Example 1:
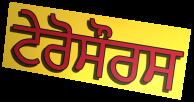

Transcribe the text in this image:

ਟੇਰੋਸੌਰਸ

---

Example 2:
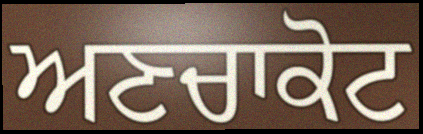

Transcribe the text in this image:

ਅਣਚਾਕੋਟ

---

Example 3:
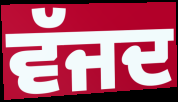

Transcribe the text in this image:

ਵੱਜਦ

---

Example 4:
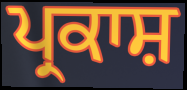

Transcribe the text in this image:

ਪ੍ਰਕਾਸ਼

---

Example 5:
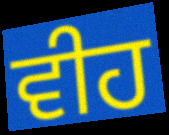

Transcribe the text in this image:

ਵੀਹ